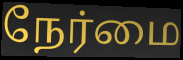
நேர்மை